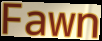
Fawn